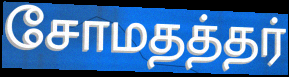
சோமதத்தர்